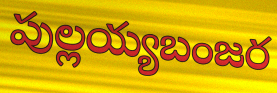
పుల్లయ్యబంజర